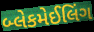
બ્લેકમેઈલિંગ